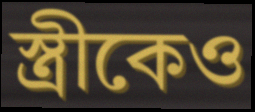
স্ত্রীকেও